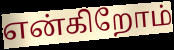
என்கிறோம்